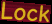
Lock